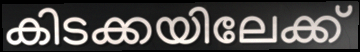
കിടക്കയിലേക്ക്